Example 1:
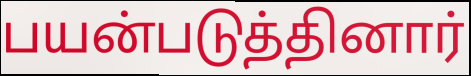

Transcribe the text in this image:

பயன்படுத்தினார்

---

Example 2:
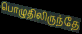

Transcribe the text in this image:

பொழுதிலிருந்தே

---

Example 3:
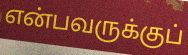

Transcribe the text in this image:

என்பவருக்குப்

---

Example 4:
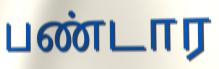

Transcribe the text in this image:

பண்டார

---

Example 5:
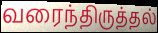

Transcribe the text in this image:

வரைந்திருத்தல்